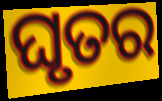
ଘୃତର